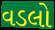
વડલો